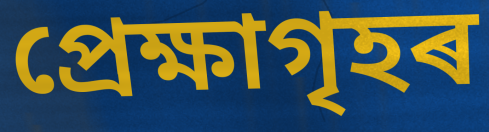
প্ৰেক্ষাগৃহৰ